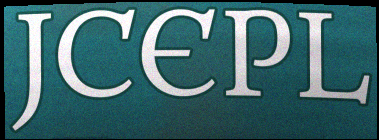
JCEPL